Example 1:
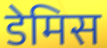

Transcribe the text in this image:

डेमिस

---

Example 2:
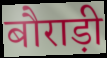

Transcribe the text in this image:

बौराड़ी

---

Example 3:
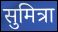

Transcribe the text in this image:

सुमित्रा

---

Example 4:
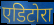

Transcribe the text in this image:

एडिटोरा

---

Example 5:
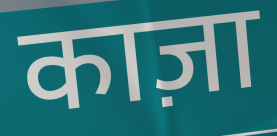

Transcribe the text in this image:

काज़ा